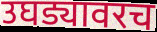
उघड्यावरच